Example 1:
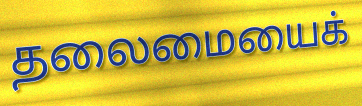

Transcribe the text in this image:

தலைமையைக்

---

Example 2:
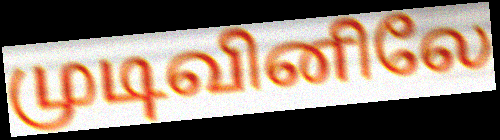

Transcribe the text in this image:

முடிவினிலே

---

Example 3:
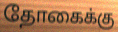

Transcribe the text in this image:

தோகைக்கு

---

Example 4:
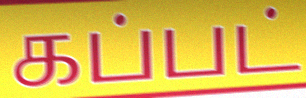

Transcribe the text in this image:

கப்பட்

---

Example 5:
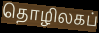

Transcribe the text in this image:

தொழிலகப்